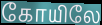
கோயிலே